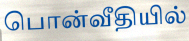
பொன்வீதியில்